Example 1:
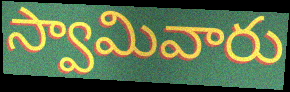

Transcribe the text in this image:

స్వామివారు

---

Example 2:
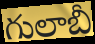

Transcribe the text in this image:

గులాబీ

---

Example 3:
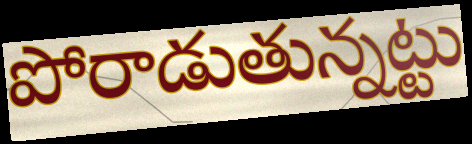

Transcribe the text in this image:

పోరాడుతున్నట్టు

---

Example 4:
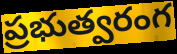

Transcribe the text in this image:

ప్రభుత్వరంగ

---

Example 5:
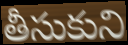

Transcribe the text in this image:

తీసుకుని